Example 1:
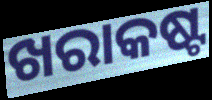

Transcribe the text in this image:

ଖରାକଷ୍ଟ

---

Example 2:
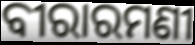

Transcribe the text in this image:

ବୀରାରମଣୀ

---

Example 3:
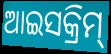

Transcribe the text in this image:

ଆଇସକ୍ରିମ୍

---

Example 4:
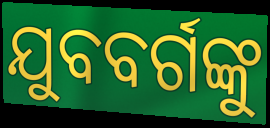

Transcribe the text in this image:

ଯୁବବର୍ଗଙ୍କୁ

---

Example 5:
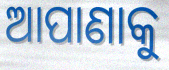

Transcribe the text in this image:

ଆପାଣାକୁ